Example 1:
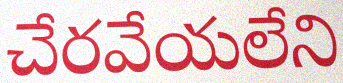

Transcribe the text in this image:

చేరవేయలేని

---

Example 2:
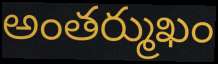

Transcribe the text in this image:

అంతర్ముఖం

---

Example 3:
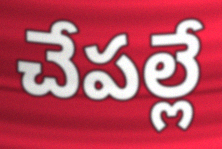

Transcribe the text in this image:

చేపల్లే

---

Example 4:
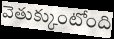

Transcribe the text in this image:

వెతుక్కుంటోంది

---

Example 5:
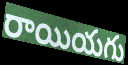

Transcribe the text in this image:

రాయియగు